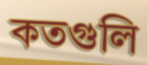
কতগুলি